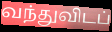
வந்துவிடப்